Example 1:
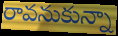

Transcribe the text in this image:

రావనుకున్నా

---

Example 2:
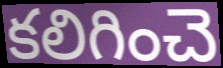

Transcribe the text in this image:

కలిగించె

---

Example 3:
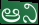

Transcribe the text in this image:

ఆని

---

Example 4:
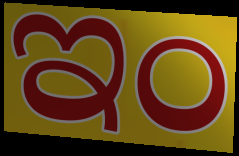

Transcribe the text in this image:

ఇం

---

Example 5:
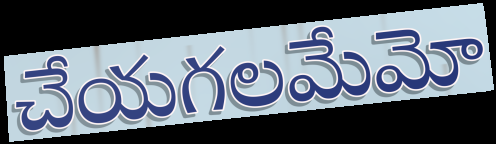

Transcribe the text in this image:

చేయగలమేమో